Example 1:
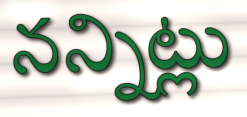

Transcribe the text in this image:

నన్నిట్లు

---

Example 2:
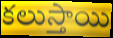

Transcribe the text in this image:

కలుస్తాయి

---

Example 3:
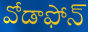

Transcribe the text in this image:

వోడాఫోన్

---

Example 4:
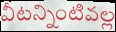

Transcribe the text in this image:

వీటన్నింటివల్ల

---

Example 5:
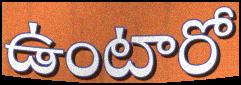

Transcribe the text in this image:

ఉంటారో